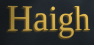
Haigh